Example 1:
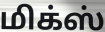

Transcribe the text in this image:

மிக்ஸ்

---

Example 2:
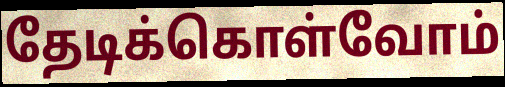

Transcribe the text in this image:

தேடிக்கொள்வோம்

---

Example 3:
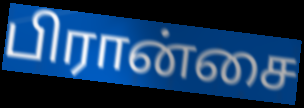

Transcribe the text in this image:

பிரான்சை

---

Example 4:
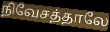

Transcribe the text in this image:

நிவேசத்தாலே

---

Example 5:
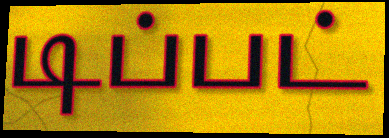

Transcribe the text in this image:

டிப்பட்